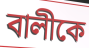
বালীকে